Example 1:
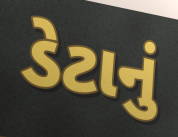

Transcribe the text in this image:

ડેટાનું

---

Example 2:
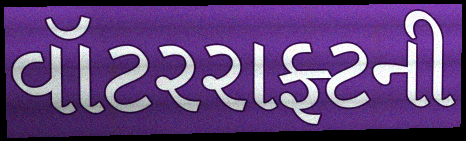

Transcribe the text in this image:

વૉટરરાફ્ટની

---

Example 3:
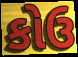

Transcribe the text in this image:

કોઉ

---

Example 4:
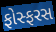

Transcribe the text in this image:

ફોસ્ફરસ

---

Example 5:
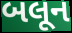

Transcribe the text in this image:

બલૂન